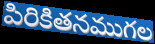
పిరికితనముగల